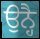
ਉਨ੍ਹੈ